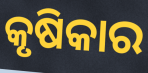
କୃଷିକାର